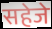
सहेजे